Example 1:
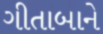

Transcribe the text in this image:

ગીતાબાને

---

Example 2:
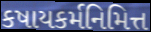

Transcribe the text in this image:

કષાયકર્મનિમિત્ત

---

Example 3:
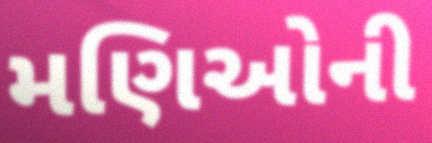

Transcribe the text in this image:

મણિઓની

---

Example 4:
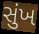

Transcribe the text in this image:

સુંખ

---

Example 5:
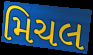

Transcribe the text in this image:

મિચલ